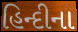
હિન્દીના